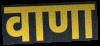
वाणा